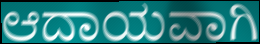
ಆದಾಯವಾಗಿ